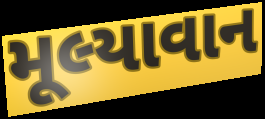
મૂલ્યાવાન